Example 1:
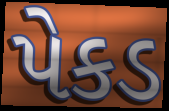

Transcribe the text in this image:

પેકડ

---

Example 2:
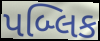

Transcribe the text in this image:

પબ્લિક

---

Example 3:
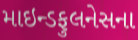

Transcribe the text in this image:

માઇન્ડફુલનેસના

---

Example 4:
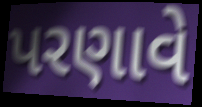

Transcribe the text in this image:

પરણાવે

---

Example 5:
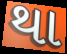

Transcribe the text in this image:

થા